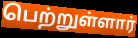
பெற்றுள்ளார்